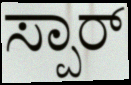
ಸ್ಪಾರ್